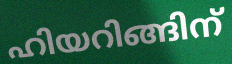
ഹിയറിങ്ങിന്